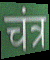
चंत्र